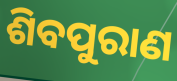
ଶିବପୁରାଣ